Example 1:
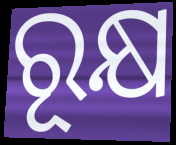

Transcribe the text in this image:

ରୂକ୍ଷ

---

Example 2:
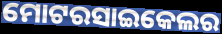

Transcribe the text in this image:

ମୋଟରସାଇକେଲର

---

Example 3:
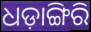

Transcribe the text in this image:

ଧଡ଼ାଙ୍ଗିରି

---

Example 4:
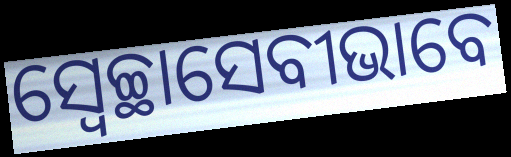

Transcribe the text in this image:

ସ୍ୱେଚ୍ଛାସେବୀଭାବେ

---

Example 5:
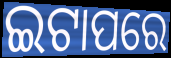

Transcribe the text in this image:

ଇଟାପରେ